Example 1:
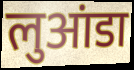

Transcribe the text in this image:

लुआंडा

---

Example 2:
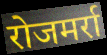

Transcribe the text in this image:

रोजमर्रा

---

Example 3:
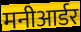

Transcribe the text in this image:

मनीआर्डर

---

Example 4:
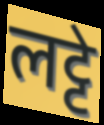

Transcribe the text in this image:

लट्टे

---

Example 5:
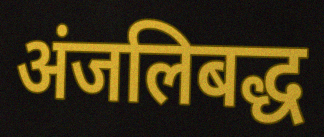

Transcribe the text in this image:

अंजलिबद्ध